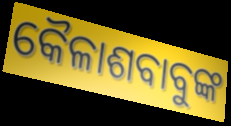
କୈଳାଶବାବୁଙ୍କ